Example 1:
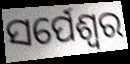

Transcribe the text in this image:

ସର୍ପେଶ୍ଵର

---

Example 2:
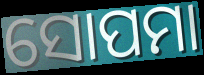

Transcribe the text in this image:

ସୋପମା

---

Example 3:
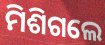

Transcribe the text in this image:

ମିଶିଗଲେ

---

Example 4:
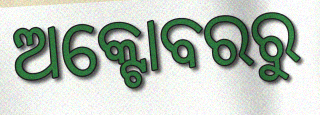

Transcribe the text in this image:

ଅକ୍ଟୋବରରୁ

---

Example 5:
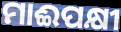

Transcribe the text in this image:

ମାଈପକ୍ଷୀ